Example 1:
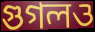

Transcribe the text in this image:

গুগলও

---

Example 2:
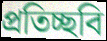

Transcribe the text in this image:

প্রতিচ্ছবি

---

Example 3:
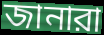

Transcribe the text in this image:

জানারা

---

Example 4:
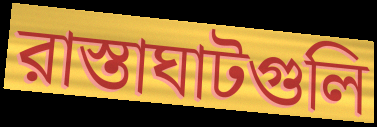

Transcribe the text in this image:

রাস্তাঘাটগুলি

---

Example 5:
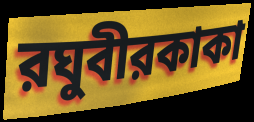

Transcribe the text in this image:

রঘুবীরকাকা